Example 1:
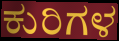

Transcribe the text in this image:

ಕುರಿಗಳ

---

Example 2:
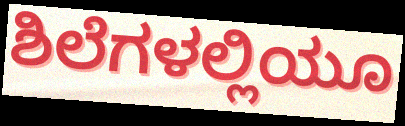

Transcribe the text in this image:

ಶಿಲೆಗಳಲ್ಲಿಯೂ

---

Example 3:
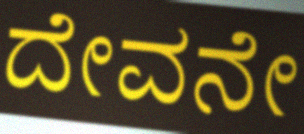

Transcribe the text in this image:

ದೇವನೇ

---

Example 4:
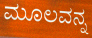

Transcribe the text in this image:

ಮೂಲವನ್ನ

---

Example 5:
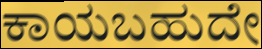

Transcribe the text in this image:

ಕಾಯಬಹುದೇ